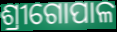
ଶ୍ରୀଗୋପାଳ